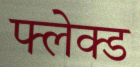
फ्लेक्ड